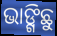
ଭାଙ୍ଗିଛୁ